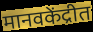
मानवकेंद्रीत